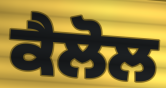
ਕੈਲੋਲ